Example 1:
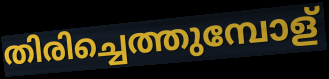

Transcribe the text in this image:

തിരിച്ചെത്തുമ്പോള്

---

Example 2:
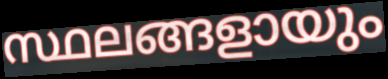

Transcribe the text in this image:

സ്ഥലങ്ങളായും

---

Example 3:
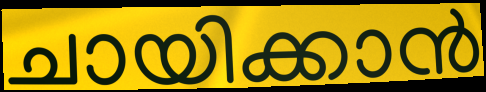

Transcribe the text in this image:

ചായിക്കാൻ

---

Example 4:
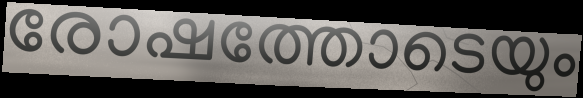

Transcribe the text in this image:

രോഷത്തോടെയും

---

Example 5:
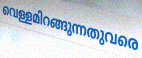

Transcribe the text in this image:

വെള്ളമിറങ്ങുന്നതുവരെ